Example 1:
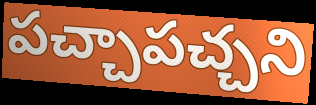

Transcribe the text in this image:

పచ్చాపచ్చని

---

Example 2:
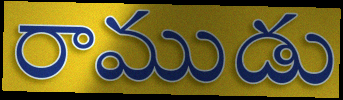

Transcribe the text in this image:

రాముడు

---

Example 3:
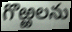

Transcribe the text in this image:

గొఱ్ఱలను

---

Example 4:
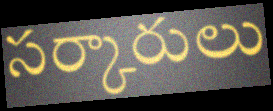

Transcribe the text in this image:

సర్కారులు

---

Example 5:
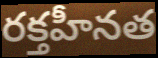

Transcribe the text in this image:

రక్తహీనత